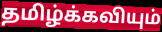
தமிழ்க்கவியும்